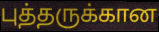
புத்தருக்கான